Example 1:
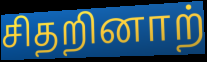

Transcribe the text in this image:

சிதறினாற்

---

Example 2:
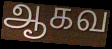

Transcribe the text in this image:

ஆகவ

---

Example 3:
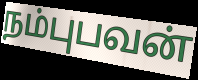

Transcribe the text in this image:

நம்புபவன்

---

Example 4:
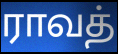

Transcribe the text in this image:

ராவத்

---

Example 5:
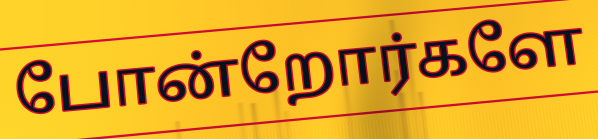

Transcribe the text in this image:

போன்றோர்களே